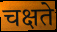
चक्षते